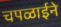
चपळाईने